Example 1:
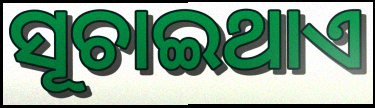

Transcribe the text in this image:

ସୂଚାଇଥାଏ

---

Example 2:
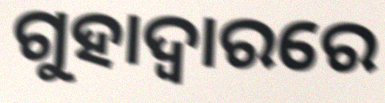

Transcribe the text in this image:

ଗୁହାଦ୍ଵାରରେ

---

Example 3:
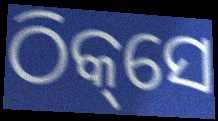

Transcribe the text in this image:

ଠିକ୍‌ସେ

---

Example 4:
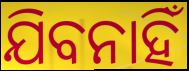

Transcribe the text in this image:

ଯିବନାହିଁ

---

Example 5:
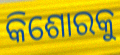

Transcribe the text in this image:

କିଶୋରକୁ